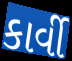
કાર્વી